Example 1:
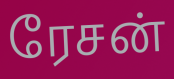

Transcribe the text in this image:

ரேசன்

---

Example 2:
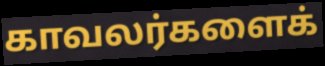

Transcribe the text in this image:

காவலர்களைக்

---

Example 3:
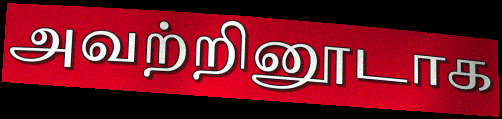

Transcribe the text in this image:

அவற்றினூடாக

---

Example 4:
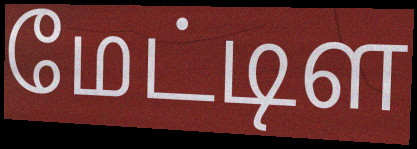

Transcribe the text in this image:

மேட்டிள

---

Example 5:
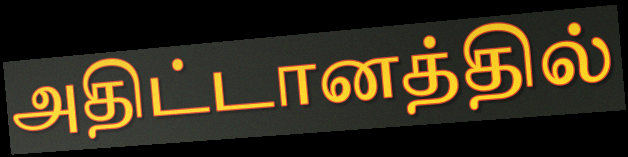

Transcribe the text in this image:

அதிட்டானத்தில்